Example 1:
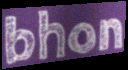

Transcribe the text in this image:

bhon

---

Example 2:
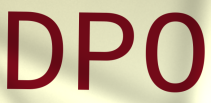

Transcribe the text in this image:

DPO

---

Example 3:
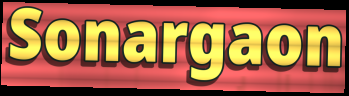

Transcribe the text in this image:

Sonargaon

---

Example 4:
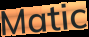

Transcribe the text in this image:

Matic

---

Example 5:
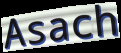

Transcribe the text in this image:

Asach